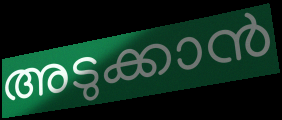
അടുക്കാൻ